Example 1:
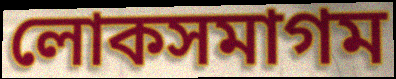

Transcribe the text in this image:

লোকসমাগম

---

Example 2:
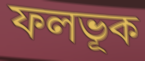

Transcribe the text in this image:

ফলভূক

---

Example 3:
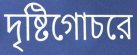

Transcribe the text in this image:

দৃষ্টিগোচরে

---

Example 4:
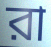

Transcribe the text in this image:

রা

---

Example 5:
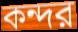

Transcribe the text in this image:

কন্দর